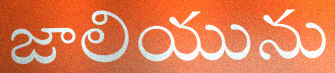
జాలియును